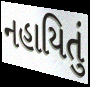
નહાયિતું